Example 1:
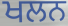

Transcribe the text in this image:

ਖਲਨ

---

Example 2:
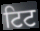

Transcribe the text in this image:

ਟਿਟ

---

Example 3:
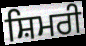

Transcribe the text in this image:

ਸ਼ਿਮਰੀ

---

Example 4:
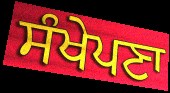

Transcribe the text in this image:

ਸੰਖੇਪਣਾ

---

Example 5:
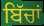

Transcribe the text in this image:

ਬਿੱਚਾਂ